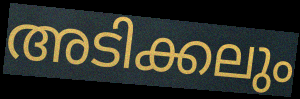
അടിക്കലും